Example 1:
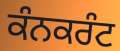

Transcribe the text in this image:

ਕੰਨਕਰੰਟ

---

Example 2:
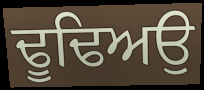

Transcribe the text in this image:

ਢੂਢਿਅਉ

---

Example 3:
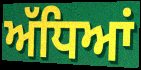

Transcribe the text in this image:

ਅੱਧਿਆਂ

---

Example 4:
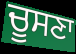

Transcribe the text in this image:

ਚੂਸਣਾ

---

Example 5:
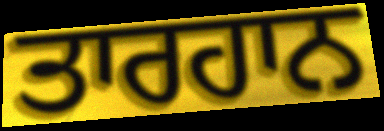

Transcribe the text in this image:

ਤਾਰਹਾਨ